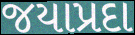
જયાપ્રદા